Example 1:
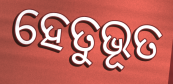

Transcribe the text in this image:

ହେତୁଭୂତ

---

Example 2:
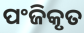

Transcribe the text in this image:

ପଂଜିକୃତ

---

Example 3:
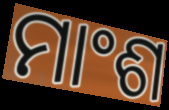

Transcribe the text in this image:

ମାଂଶ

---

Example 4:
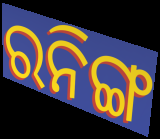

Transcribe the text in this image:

ରନିଙ୍ଗ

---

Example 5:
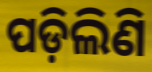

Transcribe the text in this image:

ପଡ଼ିଲିଣି